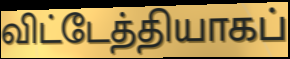
விட்டேத்தியாகப்